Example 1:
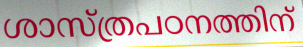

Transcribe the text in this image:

ശാസ്ത്രപഠനത്തിന്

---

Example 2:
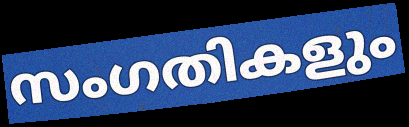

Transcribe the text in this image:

സംഗതികളും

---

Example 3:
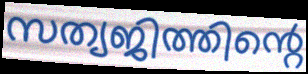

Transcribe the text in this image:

സത്യജിത്തിന്റെ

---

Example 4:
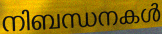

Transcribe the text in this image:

നിബന്ധനകൾ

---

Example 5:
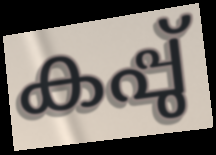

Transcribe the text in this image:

കപ്പു്